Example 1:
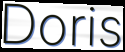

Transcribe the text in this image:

Doris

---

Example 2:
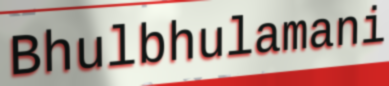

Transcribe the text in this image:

Bhulbhulamani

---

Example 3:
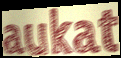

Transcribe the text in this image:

aukat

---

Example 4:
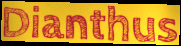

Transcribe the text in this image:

Dianthus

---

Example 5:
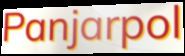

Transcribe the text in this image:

Panjarpol